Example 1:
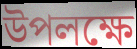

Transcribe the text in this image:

উপলক্ষে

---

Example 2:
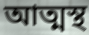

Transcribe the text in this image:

আত্মস্থ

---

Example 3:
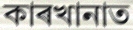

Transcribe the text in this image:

কাৰখানাত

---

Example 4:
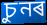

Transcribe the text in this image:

চুনৰ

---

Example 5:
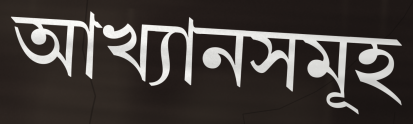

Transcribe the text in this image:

আখ্যানসমূহ